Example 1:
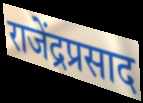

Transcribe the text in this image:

राजेंद्रप्रसाद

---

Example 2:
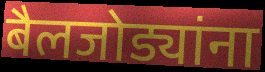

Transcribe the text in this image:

बैलजोड्यांना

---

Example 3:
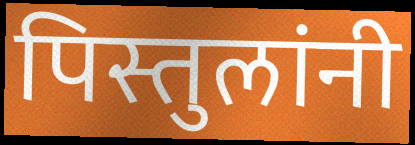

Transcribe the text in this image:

पिस्तुलांनी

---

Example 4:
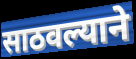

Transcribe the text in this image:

साठवल्याने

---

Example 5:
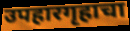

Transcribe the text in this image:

उपहारगृहाचा